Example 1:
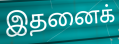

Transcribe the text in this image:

இதனைக்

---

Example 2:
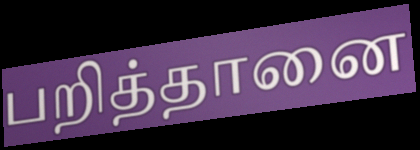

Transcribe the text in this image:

பறித்தானை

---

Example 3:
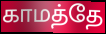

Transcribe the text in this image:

காமத்தே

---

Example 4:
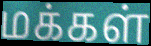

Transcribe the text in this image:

மக்கள்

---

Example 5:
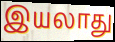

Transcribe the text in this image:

இயலாது